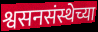
श्वसनसंस्थेच्या